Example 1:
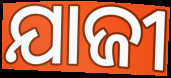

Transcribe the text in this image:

ଯାଜୀ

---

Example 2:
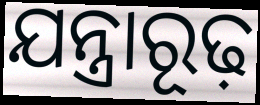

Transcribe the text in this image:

ଯନ୍ତ୍ରାରୂଢ଼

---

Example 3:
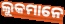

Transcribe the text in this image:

ଲୁକମାନେ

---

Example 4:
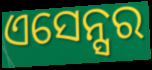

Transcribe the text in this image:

ଏସେନ୍ସର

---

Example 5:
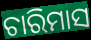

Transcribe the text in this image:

ଚାରିମାସ